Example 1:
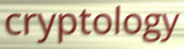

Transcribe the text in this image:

cryptology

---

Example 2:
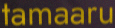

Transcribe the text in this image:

tamaaru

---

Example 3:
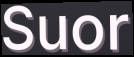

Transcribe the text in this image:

Suor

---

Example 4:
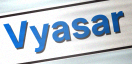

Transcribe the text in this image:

Vyasar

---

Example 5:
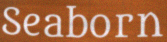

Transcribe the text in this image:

Seaborn